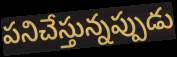
పనిచేస్తున్నప్పుడు